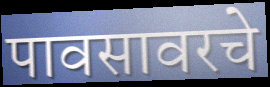
पावसावरचे